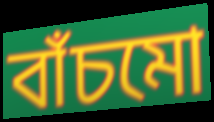
বাঁচমো